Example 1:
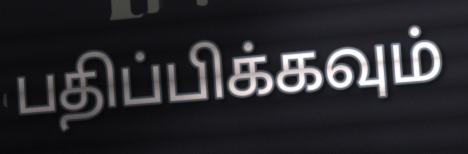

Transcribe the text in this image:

பதிப்பிக்கவும்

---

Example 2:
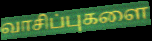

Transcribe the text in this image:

வாசிப்புகளை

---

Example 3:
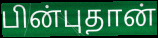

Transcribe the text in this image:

பின்புதான்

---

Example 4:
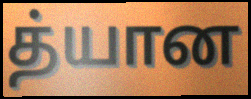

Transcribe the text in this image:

த்யான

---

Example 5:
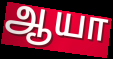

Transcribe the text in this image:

ஆயா